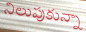
నిలుపుకున్నా